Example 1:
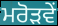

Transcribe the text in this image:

ਮਰੋੜਵੇਂ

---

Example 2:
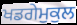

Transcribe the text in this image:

ਖਡਗੇਮੁਕੁਲ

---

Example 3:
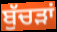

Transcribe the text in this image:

ਬੁੱਚੜਾਂ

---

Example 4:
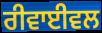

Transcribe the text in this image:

ਰੀਵਾਈਵਲ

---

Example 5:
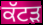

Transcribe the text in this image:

ਕੱਟੜ